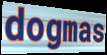
dogmas